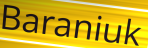
Baraniuk